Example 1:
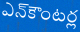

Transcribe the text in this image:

ఎన్‌కౌంటర్ల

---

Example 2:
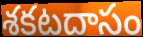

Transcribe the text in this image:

శకటదాసం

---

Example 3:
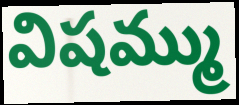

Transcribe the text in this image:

విషమ్ము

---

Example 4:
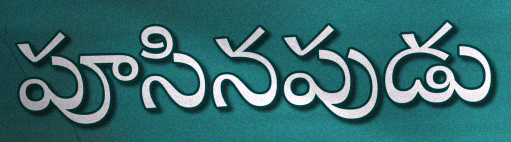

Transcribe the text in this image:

పూసినపుడు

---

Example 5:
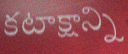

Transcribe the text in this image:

కటాక్షాన్ని